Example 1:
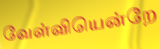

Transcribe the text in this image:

வேள்வியென்றே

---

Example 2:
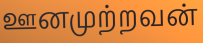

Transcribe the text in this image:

ஊனமுற்றவன்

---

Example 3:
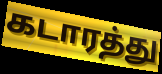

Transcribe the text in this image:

கடாரத்து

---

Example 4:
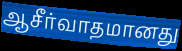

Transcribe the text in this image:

ஆசீர்வாதமானது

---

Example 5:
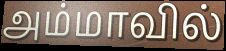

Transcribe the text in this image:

அம்மாவில்